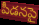
పీడనపై